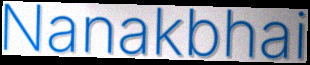
Nanakbhai